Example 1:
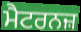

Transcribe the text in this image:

ਮੈਟਰਨਜ਼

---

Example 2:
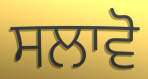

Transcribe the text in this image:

ਸਲਾਵੋ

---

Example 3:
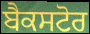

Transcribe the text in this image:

ਬੈਕਸਟੋਰ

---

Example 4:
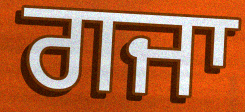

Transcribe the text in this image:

ਗਜਾ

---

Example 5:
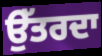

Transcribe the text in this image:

ਉੱਤਰਦਾ